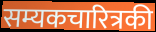
सम्यकचारित्रकी